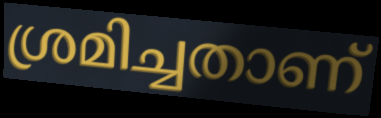
ശ്രമിച്ചതാണ്